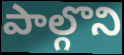
పాల్గొని